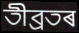
তীব্ৰতৰ